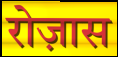
रोज़ास